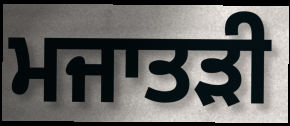
ਮਜਾਤੜੀ